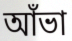
আঁভা